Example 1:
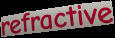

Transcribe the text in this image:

refractive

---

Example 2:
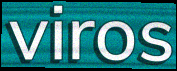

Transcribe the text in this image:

viros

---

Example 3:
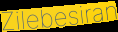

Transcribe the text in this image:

Zilebesiran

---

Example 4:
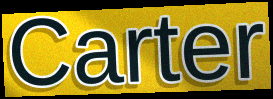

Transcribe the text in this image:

Carter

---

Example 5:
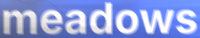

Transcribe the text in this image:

meadows